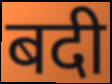
बदी